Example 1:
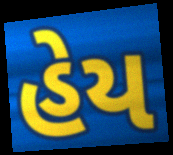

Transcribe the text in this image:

હેય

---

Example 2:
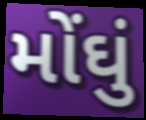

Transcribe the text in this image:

મોંઘું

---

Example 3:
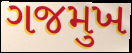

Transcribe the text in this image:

ગજમુખ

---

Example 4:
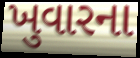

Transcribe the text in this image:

ખુવારના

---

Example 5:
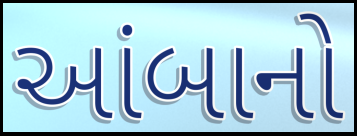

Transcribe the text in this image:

આંબાનો